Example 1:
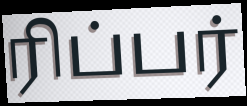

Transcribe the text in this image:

ரிப்பர்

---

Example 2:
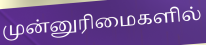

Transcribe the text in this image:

முன்னுரிமைகளில்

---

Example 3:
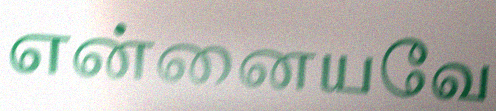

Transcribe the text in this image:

என்னையவே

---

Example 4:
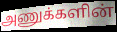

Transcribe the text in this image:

அணுக்களின்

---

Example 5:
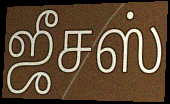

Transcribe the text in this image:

ஜீசஸ்